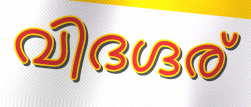
വിദഗ്ദര്